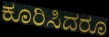
ಕೂರಿಸಿದರೂ